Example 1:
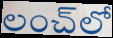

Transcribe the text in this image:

లంచ్‌లో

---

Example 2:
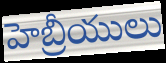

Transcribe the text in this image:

హెబ్రీయులు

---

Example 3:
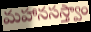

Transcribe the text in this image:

మహానసస్త్వాం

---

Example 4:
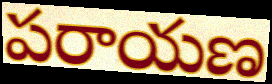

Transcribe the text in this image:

పరాయణ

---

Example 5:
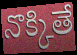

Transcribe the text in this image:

నొక్కితే